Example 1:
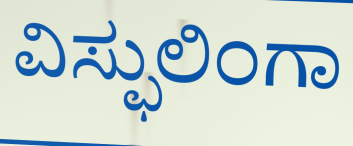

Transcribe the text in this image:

ವಿಸ್ಫುಲಿಂಗಾ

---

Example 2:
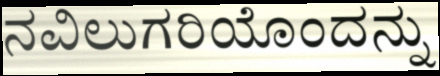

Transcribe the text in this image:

ನವಿಲುಗರಿಯೊಂದನ್ನು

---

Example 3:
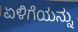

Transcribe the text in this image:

ಏಳಿಗೆಯನ್ನು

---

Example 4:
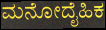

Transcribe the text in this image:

ಮನೋದೈಹಿಕ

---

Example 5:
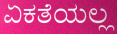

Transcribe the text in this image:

ಏಕತೆಯಲ್ಲ